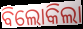
ବିଲୋକିଲା